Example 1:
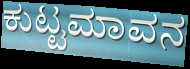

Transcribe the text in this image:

ಕುಟ್ಟಮಾವನ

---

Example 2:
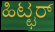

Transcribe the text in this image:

ಹಿಟ್ಟರ್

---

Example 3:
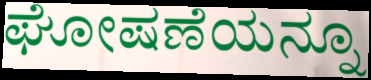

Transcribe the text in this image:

ಘೋಷಣೆಯನ್ನೂ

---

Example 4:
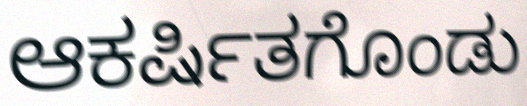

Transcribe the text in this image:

ಆಕರ್ಷಿತಗೊಂಡು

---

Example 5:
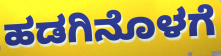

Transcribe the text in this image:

ಹಡಗಿನೊಳಗೆ